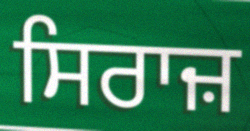
ਸਿਰਾਜ਼